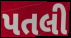
પતલી